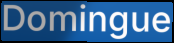
Domingue